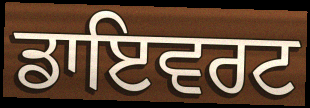
ਡਾਇਵਰਟ